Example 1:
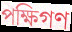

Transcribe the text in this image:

পক্ষিগণ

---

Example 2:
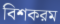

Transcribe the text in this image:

বিশকরম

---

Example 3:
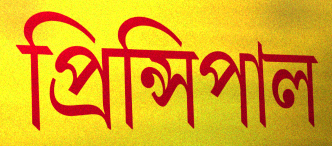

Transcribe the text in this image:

প্রিন্সিপাল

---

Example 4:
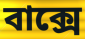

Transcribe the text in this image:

বাক্সে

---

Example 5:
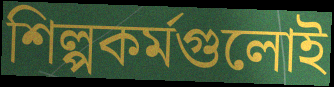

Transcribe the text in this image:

শিল্পকর্মগুলোই